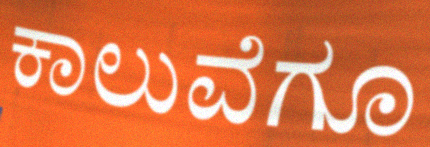
ಕಾಲುವೆಗೂ